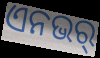
ଏନଭର୍